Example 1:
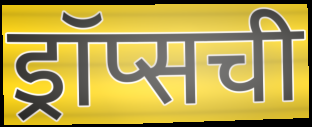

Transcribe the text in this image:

ड्रॉप्सची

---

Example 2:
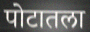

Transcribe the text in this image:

पोटातला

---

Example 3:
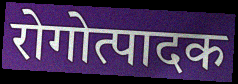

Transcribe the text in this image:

रोगोत्पादक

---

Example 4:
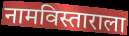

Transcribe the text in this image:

नामविस्ताराला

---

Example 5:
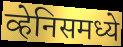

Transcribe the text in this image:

व्हेनिसमध्ये